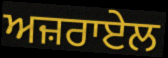
ਅਜ਼ਰਾਏਲ